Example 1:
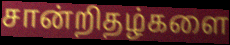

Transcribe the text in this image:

சான்றிதழ்களை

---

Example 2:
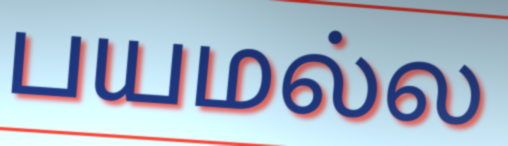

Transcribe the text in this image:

பயமல்ல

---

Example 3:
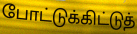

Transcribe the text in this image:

போட்டுக்கிட்டுத்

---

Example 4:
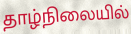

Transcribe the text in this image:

தாழ்நிலையில்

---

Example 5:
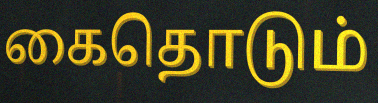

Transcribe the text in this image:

கைதொடும்